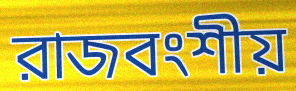
রাজবংশীয়